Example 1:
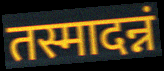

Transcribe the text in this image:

तस्मादन्नं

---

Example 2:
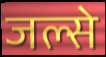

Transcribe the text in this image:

जल्से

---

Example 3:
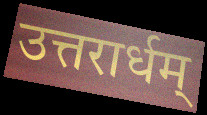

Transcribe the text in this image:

उत्तरार्धम्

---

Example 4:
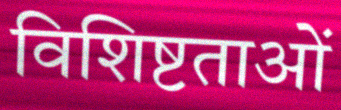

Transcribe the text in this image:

विशिष्टताओं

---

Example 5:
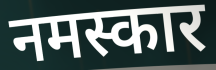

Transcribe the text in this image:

नमस्कार